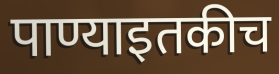
पाण्याइतकीच